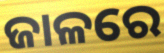
ଜାଳରେ